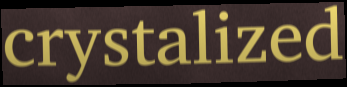
crystalized